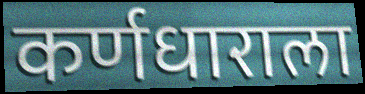
कर्णधाराला